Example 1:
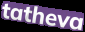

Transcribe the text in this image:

tatheva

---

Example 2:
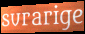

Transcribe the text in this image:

surarige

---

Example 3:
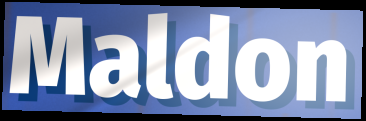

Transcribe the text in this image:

Maldon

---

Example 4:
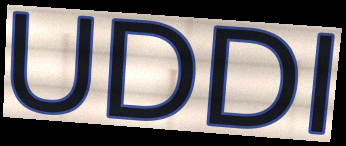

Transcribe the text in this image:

UDDI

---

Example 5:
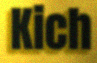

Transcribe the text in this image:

Kich